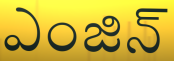
ఎంజిన్